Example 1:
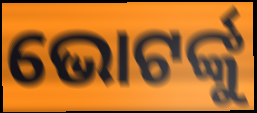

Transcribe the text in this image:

ଭୋଟର୍ଙ୍କୁ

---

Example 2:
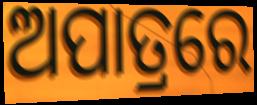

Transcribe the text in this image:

ଅପାତ୍ରରେ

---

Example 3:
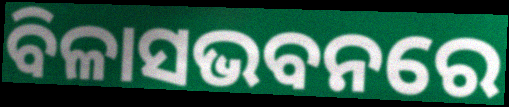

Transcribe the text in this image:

ବିଳାସଭବନରେ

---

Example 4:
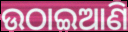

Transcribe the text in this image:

ଉଠାଇଆଣି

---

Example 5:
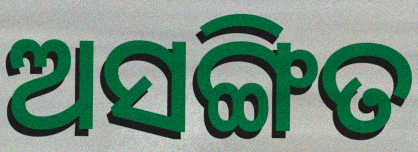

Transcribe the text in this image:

ଅସଙ୍ଗିତ